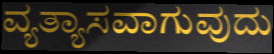
ವ್ಯತ್ಯಾಸವಾಗುವುದು